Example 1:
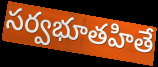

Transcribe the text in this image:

సర్వభూతహితే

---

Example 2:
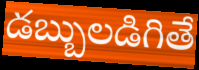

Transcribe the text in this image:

డబ్బులడిగితే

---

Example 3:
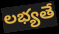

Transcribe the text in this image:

లభ్యతే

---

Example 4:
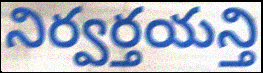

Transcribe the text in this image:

నిర్వర్తయన్తి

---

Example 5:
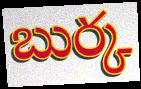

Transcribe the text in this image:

బుర్క